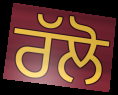
ਰੱਲੋ